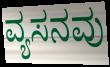
ವ್ಯಸನವು